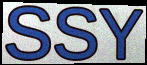
SSY